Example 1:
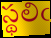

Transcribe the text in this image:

స్థలిఁ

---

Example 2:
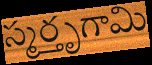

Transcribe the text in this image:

స్మర్తృగామి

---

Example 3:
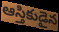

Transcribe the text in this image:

ఆస్తికుడైన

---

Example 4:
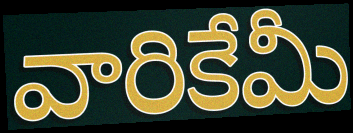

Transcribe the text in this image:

వారికేమీ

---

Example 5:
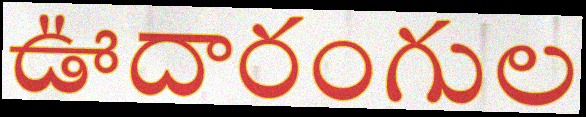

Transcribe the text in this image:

ఊదారంగుల